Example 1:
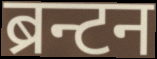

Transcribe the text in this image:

ब्रन्टन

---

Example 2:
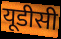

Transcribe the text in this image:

यूडीसी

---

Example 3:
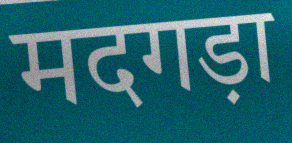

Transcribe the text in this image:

मदगड़ा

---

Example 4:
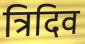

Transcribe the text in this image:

त्रिदिव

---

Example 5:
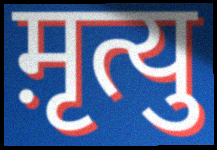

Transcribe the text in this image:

म़ृत्यु